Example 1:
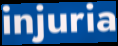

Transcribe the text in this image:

injuria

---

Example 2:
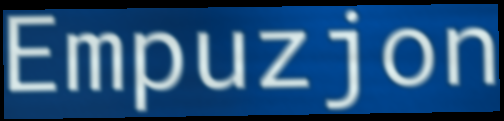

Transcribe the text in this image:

Empuzjon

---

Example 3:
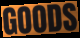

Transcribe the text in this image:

GOODS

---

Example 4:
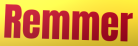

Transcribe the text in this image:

Remmer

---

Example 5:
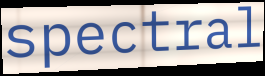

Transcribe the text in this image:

spectral